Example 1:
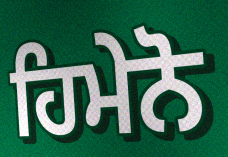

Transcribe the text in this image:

ਹਿਮੇਨੋ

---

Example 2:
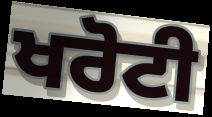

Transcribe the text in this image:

ਖਰੋਟੀ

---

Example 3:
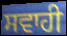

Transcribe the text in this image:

ਸਵਾਹੀ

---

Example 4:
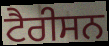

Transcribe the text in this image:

ਟੈਰੀਸਨ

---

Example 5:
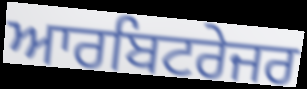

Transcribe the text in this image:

ਆਰਬਿਟਰੇਜਰ